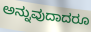
ಅನ್ನುವುದಾದರೂ